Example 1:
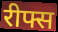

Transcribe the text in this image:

रीफ्स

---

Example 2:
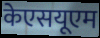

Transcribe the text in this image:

केएसयूएम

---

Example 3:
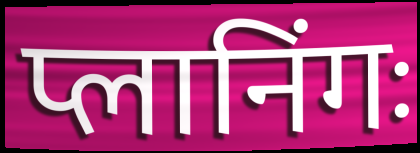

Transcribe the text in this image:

प्लानिंगः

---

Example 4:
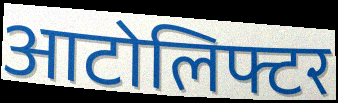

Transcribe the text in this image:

आटोलिफ्टर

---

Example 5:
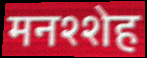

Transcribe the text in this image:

मनश्शेह